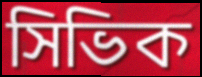
সিভিক